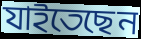
যাইতেছেন